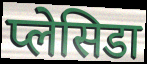
प्लेसिडा